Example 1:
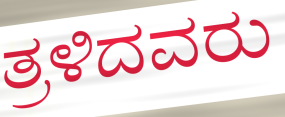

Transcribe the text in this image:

ತ್ರಳಿದವರು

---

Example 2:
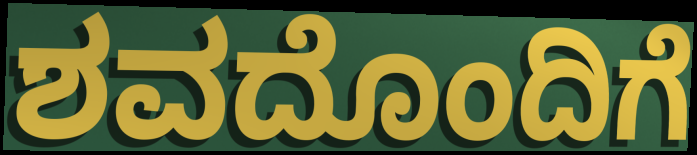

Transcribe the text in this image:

ಶವದೊಂದಿಗೆ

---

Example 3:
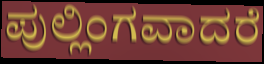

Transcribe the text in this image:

ಪುಲ್ಲಿಂಗವಾದರೆ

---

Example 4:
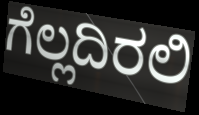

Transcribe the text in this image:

ಗೆಲ್ಲದಿರಲಿ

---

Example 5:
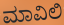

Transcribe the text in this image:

ಮಾವಿಲಿ